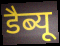
डैब्यू